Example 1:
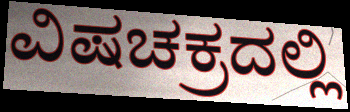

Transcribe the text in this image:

ವಿಷಚಕ್ರದಲ್ಲಿ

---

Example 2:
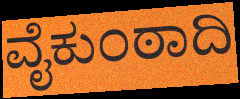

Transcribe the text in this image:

ವೈಕುಂಠಾದಿ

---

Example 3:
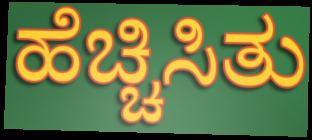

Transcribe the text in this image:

ಹೆಚ್ಚಿಸಿತು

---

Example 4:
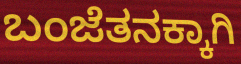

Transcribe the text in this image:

ಬಂಜೆತನಕ್ಕಾಗಿ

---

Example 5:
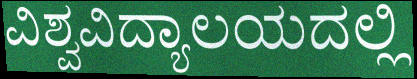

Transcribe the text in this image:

ವಿಶ್ವವಿದ್ಯಾಲಯದಲ್ಲಿ